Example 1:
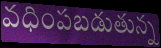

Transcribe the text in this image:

వధింపబడుతున్న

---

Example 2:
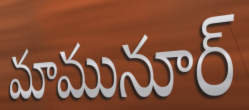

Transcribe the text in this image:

మామునూర్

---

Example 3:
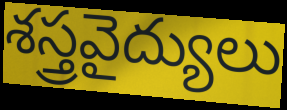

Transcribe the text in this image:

శస్త్రవైద్యులు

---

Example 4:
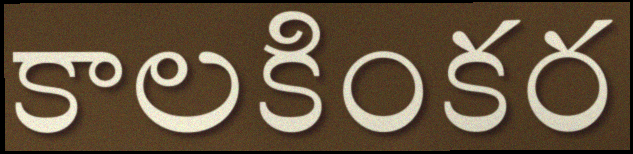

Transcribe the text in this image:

కాలకింకర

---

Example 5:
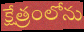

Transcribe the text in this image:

క్షేత్రంలోను